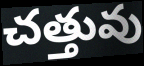
చత్తువు